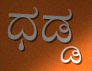
ಧಡ್ಡ